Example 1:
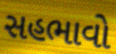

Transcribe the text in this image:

સહભાવો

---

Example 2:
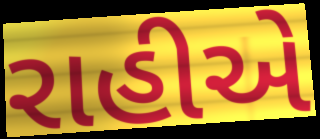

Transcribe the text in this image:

રાહીએ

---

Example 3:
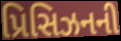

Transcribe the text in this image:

પ્રિસિઝનની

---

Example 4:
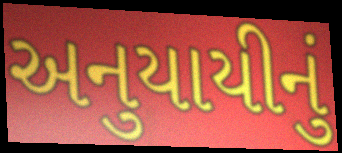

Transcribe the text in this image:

અનુયાયીનું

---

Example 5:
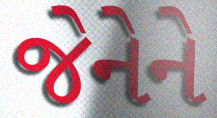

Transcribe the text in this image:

જેનેને